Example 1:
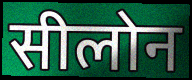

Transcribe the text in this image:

सीलोन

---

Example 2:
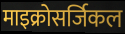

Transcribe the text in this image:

माइक्रोसर्जिकल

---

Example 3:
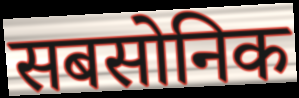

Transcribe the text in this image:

सबसोनिक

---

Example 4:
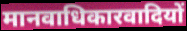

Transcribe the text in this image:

मानवाधिकारवादियों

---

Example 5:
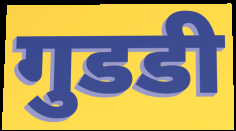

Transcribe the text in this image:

गुडडी